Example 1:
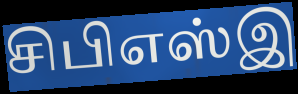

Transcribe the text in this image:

சிபிஎஸ்இ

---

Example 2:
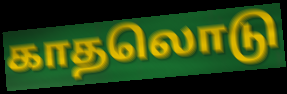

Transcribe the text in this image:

காதலொடு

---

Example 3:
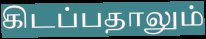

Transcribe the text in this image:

கிடப்பதாலும்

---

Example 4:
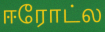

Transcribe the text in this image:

ஈரோட்ல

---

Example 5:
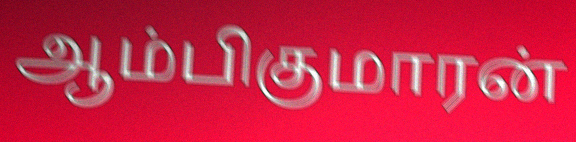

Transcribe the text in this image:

ஆம்பிகுமாரன்